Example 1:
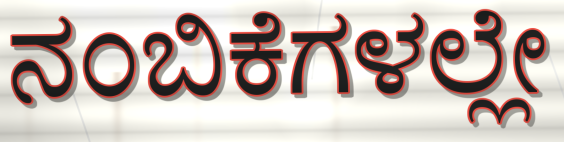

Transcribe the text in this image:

ನಂಬಿಕೆಗಳಲ್ಲೇ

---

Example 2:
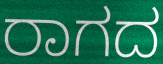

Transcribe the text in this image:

ರಾಗದ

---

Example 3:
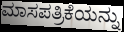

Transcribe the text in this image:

ಮಾಸಪತ್ರಿಕೆಯನ್ನು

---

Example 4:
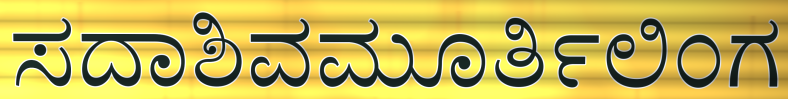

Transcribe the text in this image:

ಸದಾಶಿವಮೂರ್ತಿಲಿಂಗ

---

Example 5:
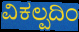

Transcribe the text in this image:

ವಿಕಲ್ಪದಿಂ